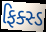
ફિક્સ્ડ